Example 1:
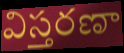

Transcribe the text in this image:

విస్తరణా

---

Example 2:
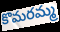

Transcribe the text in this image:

కొమరమ్మ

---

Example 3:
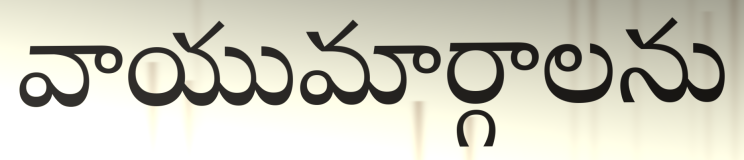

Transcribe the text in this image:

వాయుమార్గాలను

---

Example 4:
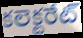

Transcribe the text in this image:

కలెక్టరేట్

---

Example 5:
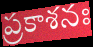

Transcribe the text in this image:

ప్రకాశనః